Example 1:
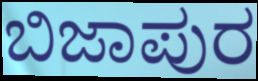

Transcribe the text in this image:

ಬಿಜಾಪುರ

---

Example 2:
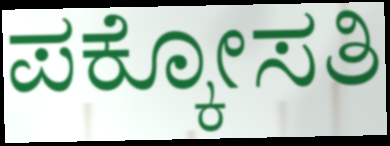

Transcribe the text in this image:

ಪಕ್ಕೋಸತಿ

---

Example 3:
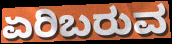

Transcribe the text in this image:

ಏರಿಬರುವ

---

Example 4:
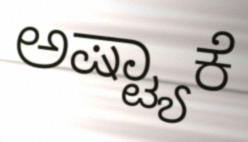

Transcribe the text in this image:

ಅಷ್ಟ್ಯಾಕೆ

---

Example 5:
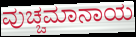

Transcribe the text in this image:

ವುಚ್ಚಮಾನಾಯ